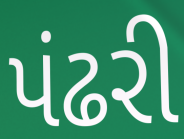
પંઢરી